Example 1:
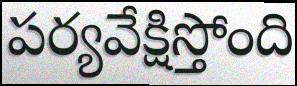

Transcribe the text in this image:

పర్యవేక్షిస్తోంది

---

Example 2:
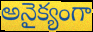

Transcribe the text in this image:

అనైక్యంగా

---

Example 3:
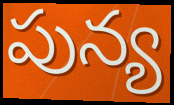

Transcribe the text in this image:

పున్య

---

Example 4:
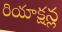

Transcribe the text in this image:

రియాక్షన్ల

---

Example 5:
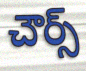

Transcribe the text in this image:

చౌర్స్